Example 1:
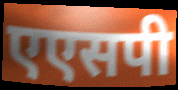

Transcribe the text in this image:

एएसपी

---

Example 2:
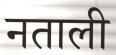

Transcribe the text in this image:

नताली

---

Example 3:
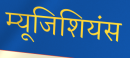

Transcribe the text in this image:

म्यूजिशियंस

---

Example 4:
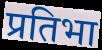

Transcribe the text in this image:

प्रतिभा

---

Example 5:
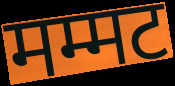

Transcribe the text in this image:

मम्मट